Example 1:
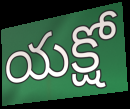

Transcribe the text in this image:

యక్షో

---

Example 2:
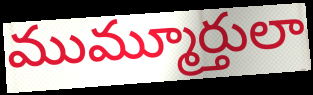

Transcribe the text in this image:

ముమ్మూర్తులా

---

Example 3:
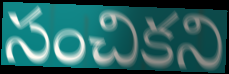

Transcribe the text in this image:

సంచికని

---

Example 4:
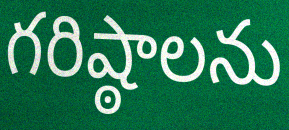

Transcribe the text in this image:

గరిష్ఠాలను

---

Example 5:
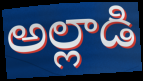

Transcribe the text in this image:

అల్లాడి